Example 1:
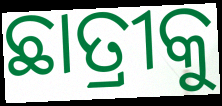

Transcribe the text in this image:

ଛାତ୍ରୀକୁ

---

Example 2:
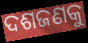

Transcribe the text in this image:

ଦଶଜଣକୁ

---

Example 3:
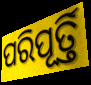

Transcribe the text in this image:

ପରିପୂର୍ତ୍ତି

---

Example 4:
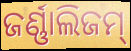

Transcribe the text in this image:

ଜର୍ଣ୍ଣାଲିଜମ୍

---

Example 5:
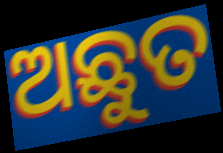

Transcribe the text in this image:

ଅଛୁତ